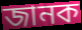
জানক